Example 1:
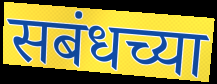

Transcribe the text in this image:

सबंधच्या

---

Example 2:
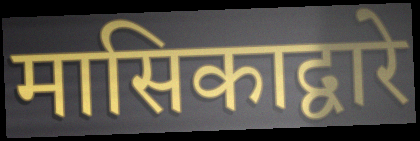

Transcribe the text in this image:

मासिकाद्वारे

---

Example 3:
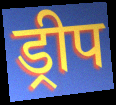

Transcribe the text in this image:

ड्रीप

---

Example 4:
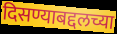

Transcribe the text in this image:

दिसण्याबद्दलच्या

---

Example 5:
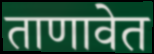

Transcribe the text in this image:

ताणावेत